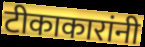
टीकाकारांनी